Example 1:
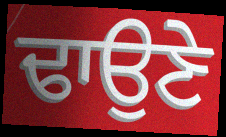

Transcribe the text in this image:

ਢਾਉਣੇ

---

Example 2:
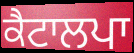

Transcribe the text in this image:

ਕੈਟਾਲਪਾ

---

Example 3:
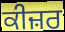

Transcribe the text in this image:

ਕੀਜ਼ਰ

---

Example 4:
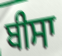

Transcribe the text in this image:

ਬੀਸਾ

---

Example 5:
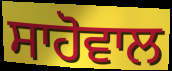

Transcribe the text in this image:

ਸਾਹੋਵਾਲ